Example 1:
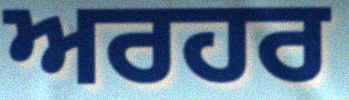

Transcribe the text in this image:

ਅਰਹਰ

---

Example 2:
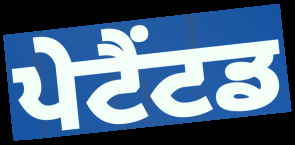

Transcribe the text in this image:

ਪੇਟੈਂਟਡ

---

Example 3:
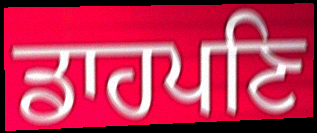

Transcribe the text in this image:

ਡਾਹਪਣਿ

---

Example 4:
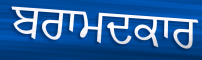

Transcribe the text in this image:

ਬਰਾਮਦਕਾਰ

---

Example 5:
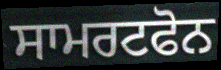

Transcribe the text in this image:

ਸਾਮਰਟਫੋਨ